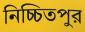
নিচ্চিতপুর